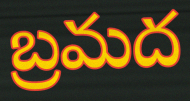
బ్రమద